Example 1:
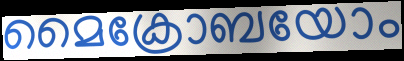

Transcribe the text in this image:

മൈക്രോബയോം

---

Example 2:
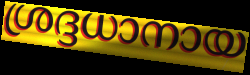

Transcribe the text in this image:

ശ്രദ്ദധാനായ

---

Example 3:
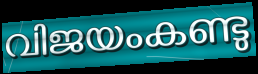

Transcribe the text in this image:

വിജയംകണ്ടു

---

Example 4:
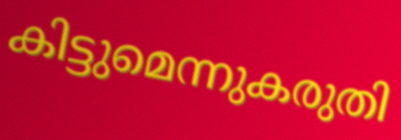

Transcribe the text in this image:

കിട്ടുമെന്നുകരുതി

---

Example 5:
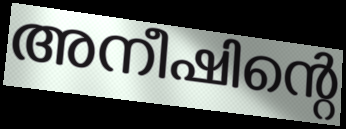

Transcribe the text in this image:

അനീഷിന്റെ